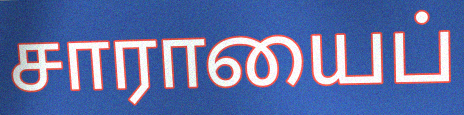
சாராயைப்